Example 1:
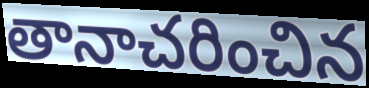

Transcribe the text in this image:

తానాచరించిన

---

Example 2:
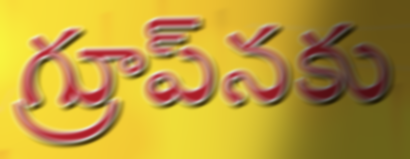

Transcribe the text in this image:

గ్రూప్‌నకు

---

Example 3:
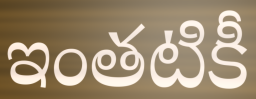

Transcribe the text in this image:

ఇంతటికీ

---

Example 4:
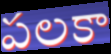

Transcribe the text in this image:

పలకా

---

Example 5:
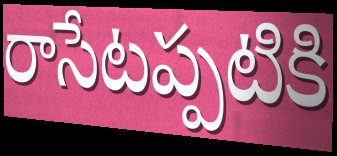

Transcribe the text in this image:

రాసేటప్పటికి